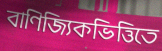
বাণিজ্যিকভিত্তিতে